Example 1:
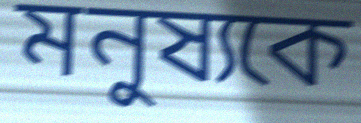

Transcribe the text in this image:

মনুষ্যকে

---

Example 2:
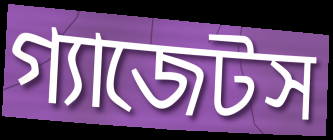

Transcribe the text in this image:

গ্যাজেটস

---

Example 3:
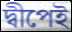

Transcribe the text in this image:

দ্বীপেই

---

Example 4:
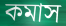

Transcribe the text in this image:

কমাস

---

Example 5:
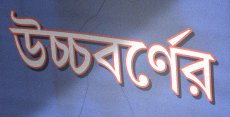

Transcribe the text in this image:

উচ্চবর্ণের